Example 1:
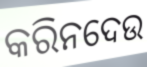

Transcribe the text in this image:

କରିନଦେଉ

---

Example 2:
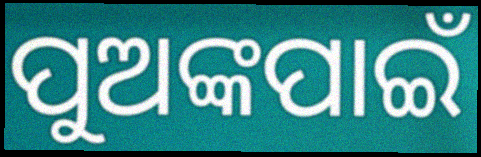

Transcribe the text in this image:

ପୁଅଙ୍କପାଇଁ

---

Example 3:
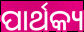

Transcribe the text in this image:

ପାର୍ଥକ୍ୟ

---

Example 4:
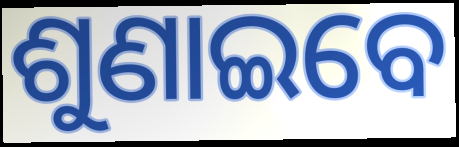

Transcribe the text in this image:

ଶୁଣାଇବେ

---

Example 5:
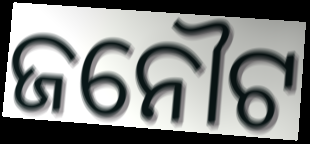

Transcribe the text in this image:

ଜନୌଟ